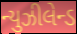
ન્યુઝીલેન્ડ